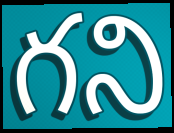
గని